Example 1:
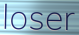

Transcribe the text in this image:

loser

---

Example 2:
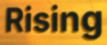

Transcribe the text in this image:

Rising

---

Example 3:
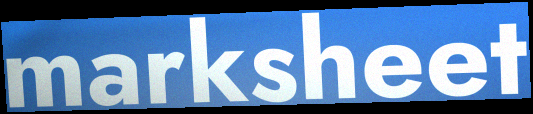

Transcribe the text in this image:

marksheet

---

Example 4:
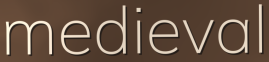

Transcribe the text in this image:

medieval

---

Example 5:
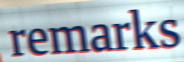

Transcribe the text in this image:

remarks